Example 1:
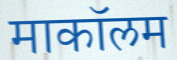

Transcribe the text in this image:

माकॉलम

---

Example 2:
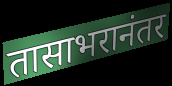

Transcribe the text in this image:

तासाभरानंतर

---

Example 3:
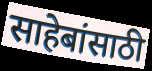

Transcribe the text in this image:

साहेबांसाठी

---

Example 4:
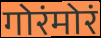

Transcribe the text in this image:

गोरंमोरं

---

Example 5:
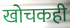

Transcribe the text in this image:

खोचकही